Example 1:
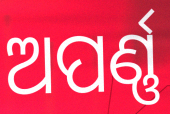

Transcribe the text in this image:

ଅପର୍ଣ୍ଣ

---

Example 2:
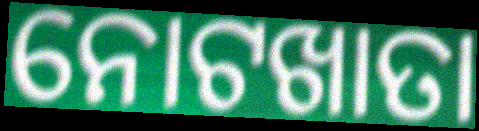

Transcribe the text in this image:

ନୋଟଖାତା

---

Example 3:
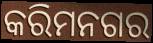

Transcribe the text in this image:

କରିମନଗର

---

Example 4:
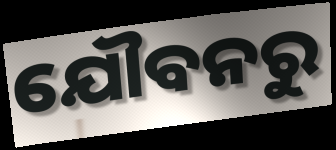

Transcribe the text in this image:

ଯୌବନରୁ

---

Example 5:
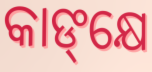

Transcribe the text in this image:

କାଙ୍‌କ୍ଷେ